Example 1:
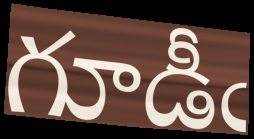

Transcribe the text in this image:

గూడీఁ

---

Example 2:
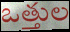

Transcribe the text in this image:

ఒత్తుల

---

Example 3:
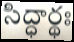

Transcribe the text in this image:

సిద్ధార్థః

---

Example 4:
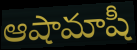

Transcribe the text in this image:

ఆషామాషీ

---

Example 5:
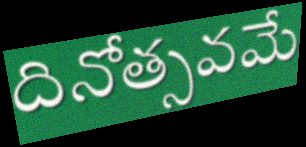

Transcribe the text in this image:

దినోత్సవమే